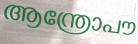
ആന്ത്രോപൗ